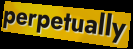
perpetually